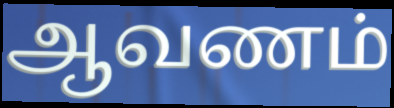
ஆவணம்